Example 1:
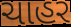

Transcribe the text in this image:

ચાહર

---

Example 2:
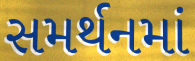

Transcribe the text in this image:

સમર્થનમાં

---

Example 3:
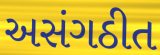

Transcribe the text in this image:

અસંગઠીત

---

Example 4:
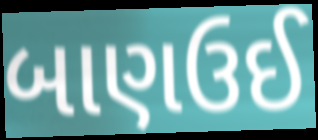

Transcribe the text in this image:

બાણઉઈ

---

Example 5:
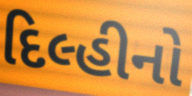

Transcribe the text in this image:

દિલ્હીનો